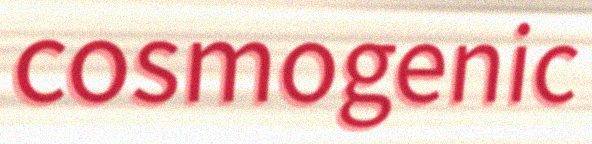
cosmogenic